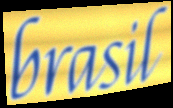
brasil